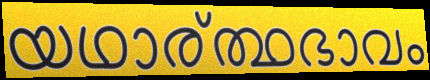
യഥാര്ത്ഥഭാവം